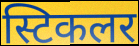
स्टिकलर